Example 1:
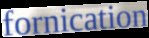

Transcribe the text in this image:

fornication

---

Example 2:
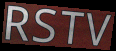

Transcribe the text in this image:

RSTV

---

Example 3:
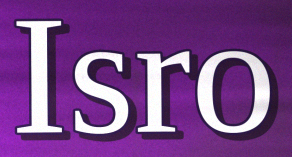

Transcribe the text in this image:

Isro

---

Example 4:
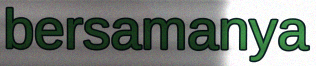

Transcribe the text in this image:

bersamanya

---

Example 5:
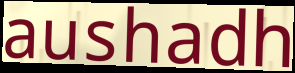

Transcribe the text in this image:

aushadh